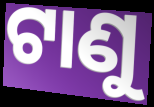
ଟାଣୁ